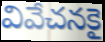
వివేచనకై